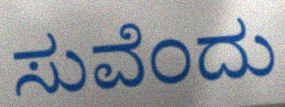
ಸುವೆಂದು